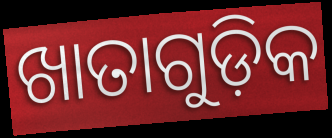
ଖାତାଗୁଡ଼ିକ